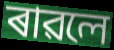
ৰাৱলে